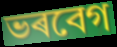
ভৰবেগ